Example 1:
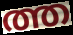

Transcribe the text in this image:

ത്ത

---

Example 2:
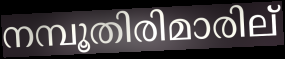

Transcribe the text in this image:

നമ്പൂതിരിമാരില്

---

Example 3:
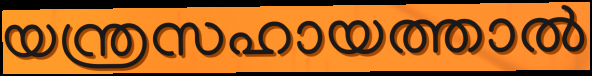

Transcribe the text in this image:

യന്ത്രസഹായത്താൽ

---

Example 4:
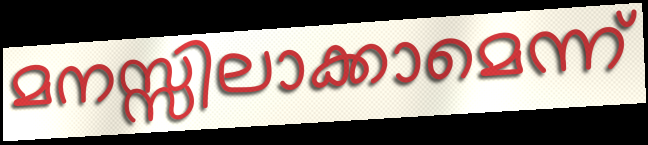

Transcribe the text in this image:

മനസ്സിലാക്കാമെന്ന്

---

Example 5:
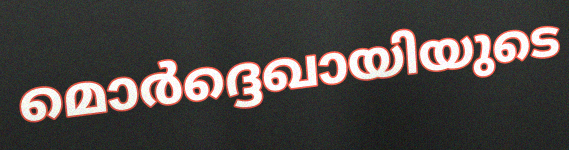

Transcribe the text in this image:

മൊർദ്ദെഖായിയുടെ